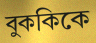
বুককিকে